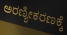
ಅರಣ್ಯೀಕರಣಕ್ಕೆ